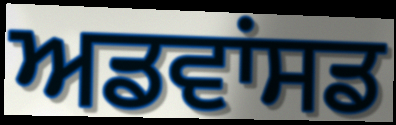
ਅਡਵਾਂਸਡ